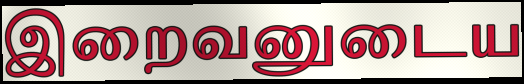
இறைவனுடைய